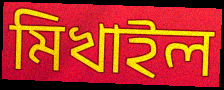
মিখাইল